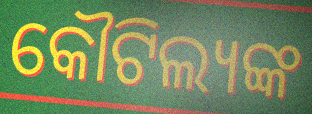
କୌଟିଲ୍ୟଙ୍କ